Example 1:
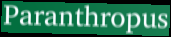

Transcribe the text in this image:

Paranthropus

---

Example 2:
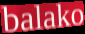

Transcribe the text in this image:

balako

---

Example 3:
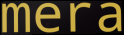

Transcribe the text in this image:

mera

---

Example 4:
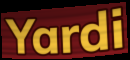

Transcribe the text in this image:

Yardi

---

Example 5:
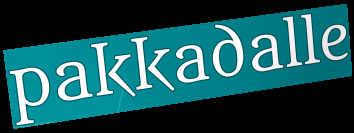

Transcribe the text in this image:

pakkadalle